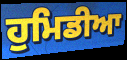
ਹੁਮਿਡੀਆ